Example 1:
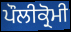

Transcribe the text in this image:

ਪੌਲੀਕ੍ਰੋਮੀ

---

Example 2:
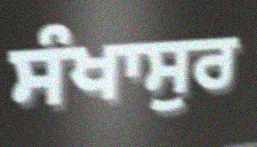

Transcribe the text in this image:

ਸੰਖਾਸੁਰ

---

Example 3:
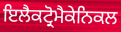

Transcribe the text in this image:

ਇਲੈਕਟ੍ਰੋਮੈਕੇਨਿਕਲ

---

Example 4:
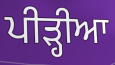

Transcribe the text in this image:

ਪੀੜ੍ਹੀਆ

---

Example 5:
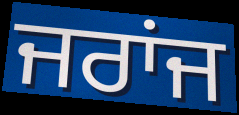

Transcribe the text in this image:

ਜਰਾਂਜ